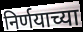
निर्णयाच्या